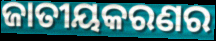
ଜାତୀୟକରଣର